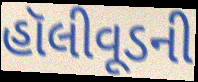
હૉલીવૂડની